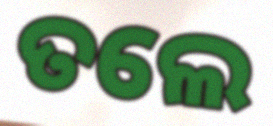
ତଲେ